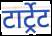
टार्ट्रेट